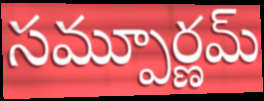
సమ్పూర్ణమ్